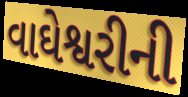
વાઘેશ્વરીની